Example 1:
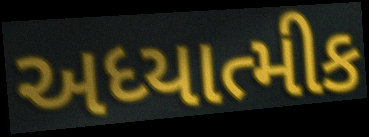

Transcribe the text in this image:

અધ્યાત્મીક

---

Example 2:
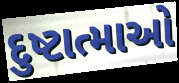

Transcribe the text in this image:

દુષ્ટાત્માઓ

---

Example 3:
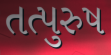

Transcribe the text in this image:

તત્પુરુષ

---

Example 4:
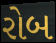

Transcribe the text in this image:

રોબ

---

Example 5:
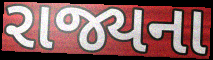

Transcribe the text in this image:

રાજ્યના